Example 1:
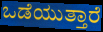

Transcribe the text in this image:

ಒಡೆಯುತ್ತಾರೆ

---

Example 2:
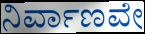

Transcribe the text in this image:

ನಿರ್ವಾಣವೇ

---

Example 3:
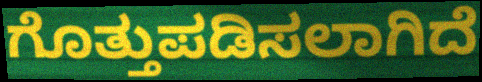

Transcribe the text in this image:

ಗೊತ್ತುಪಡಿಸಲಾಗಿದೆ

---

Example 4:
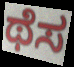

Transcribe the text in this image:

ಥೆಸ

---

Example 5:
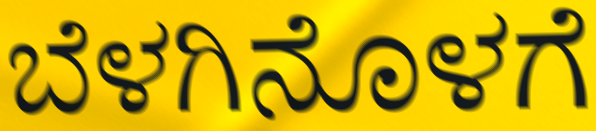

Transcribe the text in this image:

ಬೆಳಗಿನೊಳಗೆ